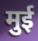
मुई